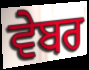
ਵੇਬਰ